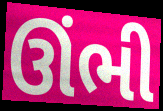
ઊંભી